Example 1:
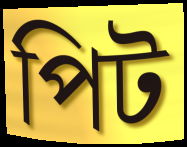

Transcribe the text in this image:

পিট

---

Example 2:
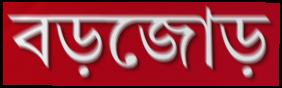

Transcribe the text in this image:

বড়জোড়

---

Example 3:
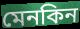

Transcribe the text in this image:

মেনকিন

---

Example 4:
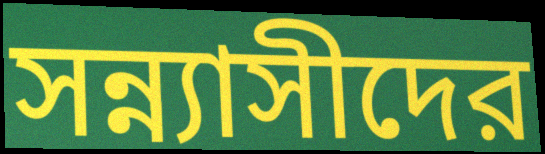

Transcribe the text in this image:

সন্ন্যাসীদের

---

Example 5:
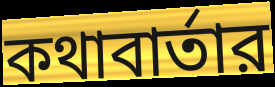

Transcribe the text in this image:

কথাবার্তার